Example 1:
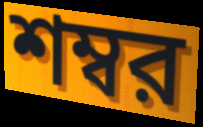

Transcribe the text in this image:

শম্বর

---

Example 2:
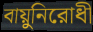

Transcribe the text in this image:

বায়ুনিরোধী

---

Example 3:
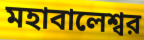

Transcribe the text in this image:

মহাবালেশ্বর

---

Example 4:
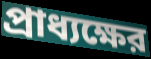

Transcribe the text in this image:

প্রাধ্যক্ষের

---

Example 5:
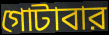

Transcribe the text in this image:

গোটাবার